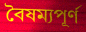
বৈষম্যপূৰ্ণ